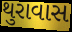
થુરાવાસ